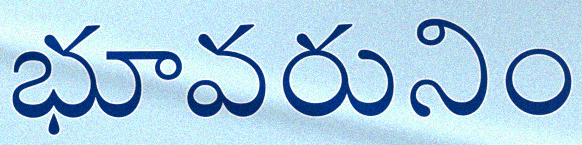
భూవరునిం